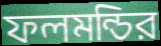
ফলমন্ডির